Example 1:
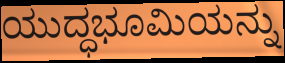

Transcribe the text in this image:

ಯುದ್ಧಭೂಮಿಯನ್ನು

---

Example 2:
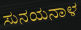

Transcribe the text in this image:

ಸುನಯನಾಳ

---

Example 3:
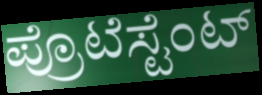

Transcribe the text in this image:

ಪ್ರೊಟೆಸ್ಟೆಂಟ್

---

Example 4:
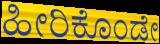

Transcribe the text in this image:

ಹೀರಿಕೊಂಡೇ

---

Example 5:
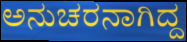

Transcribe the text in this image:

ಅನುಚರನಾಗಿದ್ದ